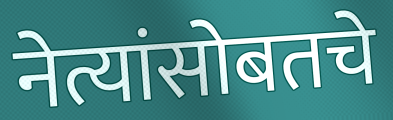
नेत्यांसोबतचे